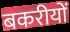
बकरीयों